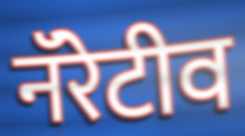
नॅरेटीव